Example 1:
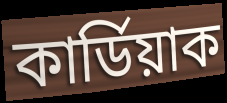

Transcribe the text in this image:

কাৰ্ডিয়াক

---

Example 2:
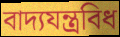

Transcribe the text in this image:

বাদ্যযন্ত্ৰবিধ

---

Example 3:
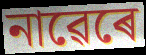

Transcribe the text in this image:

নাৱেৰে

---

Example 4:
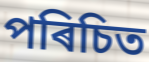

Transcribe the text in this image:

পৰিচিত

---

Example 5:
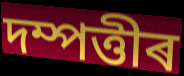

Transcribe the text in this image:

দম্পত্তীৰ